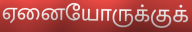
ஏனையோருக்குக்